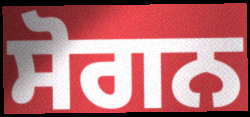
ਸੋਗਨ